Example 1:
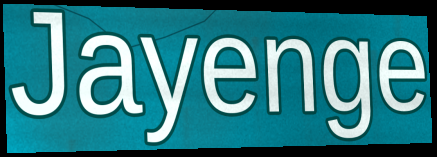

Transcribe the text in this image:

Jayenge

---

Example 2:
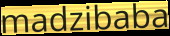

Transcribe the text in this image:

madzibaba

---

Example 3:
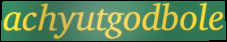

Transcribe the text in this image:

achyutgodbole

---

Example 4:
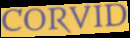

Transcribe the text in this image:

CORVID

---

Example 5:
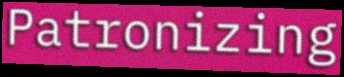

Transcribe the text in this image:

Patronizing